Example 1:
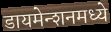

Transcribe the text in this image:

डायमेन्शनमध्ये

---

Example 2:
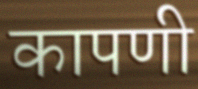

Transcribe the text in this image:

कापणी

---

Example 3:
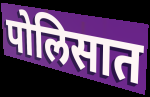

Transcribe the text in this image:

पोलिसात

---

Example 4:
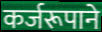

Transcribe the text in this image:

कर्जरूपाने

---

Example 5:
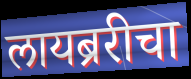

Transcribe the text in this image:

लायब्ररीचा